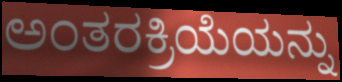
ಅಂತರಕ್ರಿಯೆಯನ್ನು